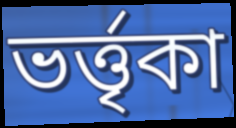
ভর্ত্তৃকা